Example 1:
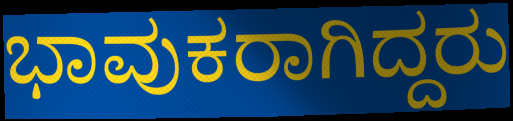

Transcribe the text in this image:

ಭಾವುಕರಾಗಿದ್ದರು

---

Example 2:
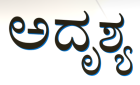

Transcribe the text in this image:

ಅದೃಶ್ಯ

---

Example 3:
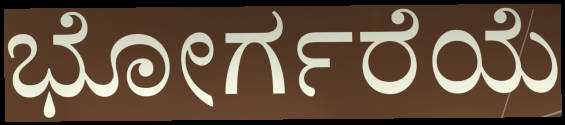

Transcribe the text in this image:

ಭೋರ್ಗರೆಯೆ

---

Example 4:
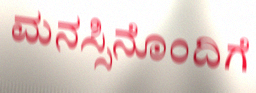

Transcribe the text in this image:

ಮನಸ್ಸಿನೊಂದಿಗೆ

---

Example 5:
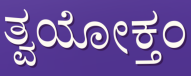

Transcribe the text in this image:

ತ್ವಯೋಕ್ತಂ